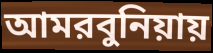
আমরবুনিয়ায়